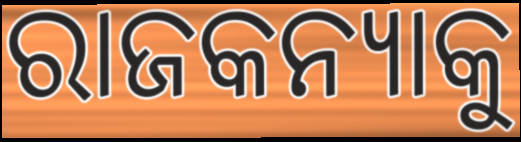
ରାଜକନ୍ୟାକୁ